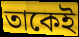
তাকেই